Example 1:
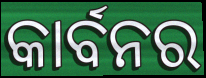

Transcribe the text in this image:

କାର୍ବନର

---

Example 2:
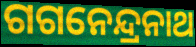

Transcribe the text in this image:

ଗଗନେନ୍ଦ୍ରନାଥ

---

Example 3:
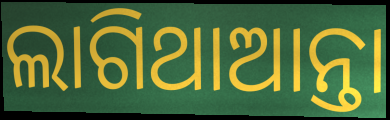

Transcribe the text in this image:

ଲାଗିଥାଆନ୍ତା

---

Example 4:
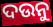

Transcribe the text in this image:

ଦଉନୁ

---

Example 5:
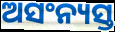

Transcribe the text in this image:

ଅସଂନ୍ୟସ୍ତ